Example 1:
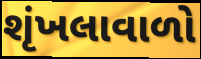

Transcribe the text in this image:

શૃંખલાવાળો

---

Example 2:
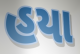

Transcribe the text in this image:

હયા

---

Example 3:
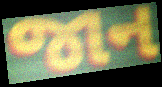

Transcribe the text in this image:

જાન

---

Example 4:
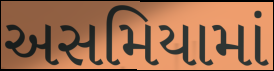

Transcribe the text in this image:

અસમિયામાં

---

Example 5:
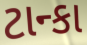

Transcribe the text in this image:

ટાન્કા